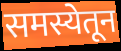
समस्येतून